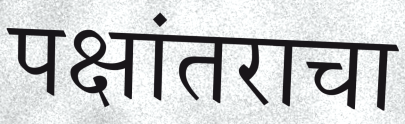
पक्षांतराचा